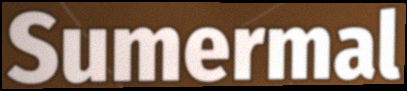
Sumermal